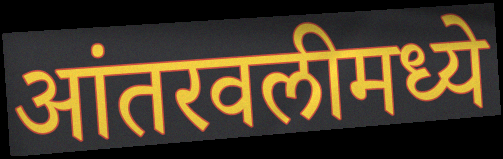
आंतरवलीमध्ये